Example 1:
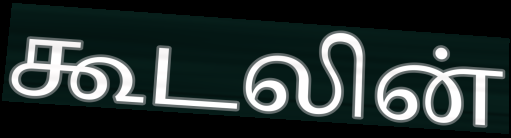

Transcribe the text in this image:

கூடலின்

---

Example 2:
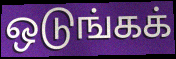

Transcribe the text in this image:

ஒடுங்கக்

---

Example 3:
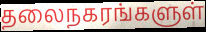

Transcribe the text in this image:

தலைநகரங்களுள்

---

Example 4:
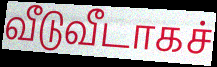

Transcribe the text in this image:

வீடுவீடாகச்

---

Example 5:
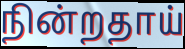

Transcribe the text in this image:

நின்றதாய்